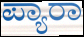
ಪ್ಯಾರಾ